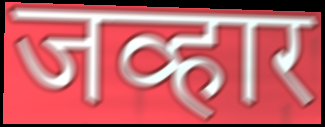
जव्हार